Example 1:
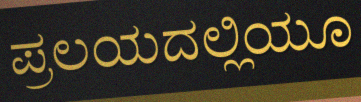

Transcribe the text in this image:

ಪ್ರಲಯದಲ್ಲಿಯೂ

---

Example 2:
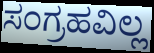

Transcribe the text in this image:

ಸಂಗ್ರಹವಿಲ್ಲ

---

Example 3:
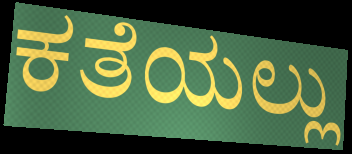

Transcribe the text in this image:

ಕತೆಯಲ್ಲು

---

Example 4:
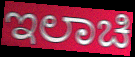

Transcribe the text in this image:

ಇಲಾಚಿ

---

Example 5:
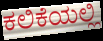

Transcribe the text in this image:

ಕಲಿಕೆಯಲ್ಲಿ